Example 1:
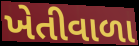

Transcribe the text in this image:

ખેતીવાળા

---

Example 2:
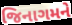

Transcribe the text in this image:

જિનાગમને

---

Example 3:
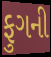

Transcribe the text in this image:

ફુગની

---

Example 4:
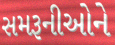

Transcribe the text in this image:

સમરૂનીઓને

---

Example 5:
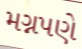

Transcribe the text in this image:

મગ્નપણે